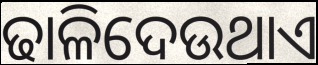
ଢାଳିଦେଉଥାଏ